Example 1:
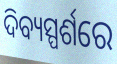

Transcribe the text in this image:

ଦିବ୍ୟସ୍ପର୍ଶରେ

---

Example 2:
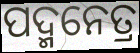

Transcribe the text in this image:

ପଦ୍ମନେତ୍ର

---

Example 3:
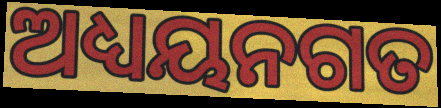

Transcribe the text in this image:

ଅଧ୍ୟୟନଗତ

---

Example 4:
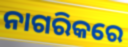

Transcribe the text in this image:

ନାଗରିକରେ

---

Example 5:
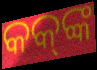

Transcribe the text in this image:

କକ୍‌ଙ୍କ